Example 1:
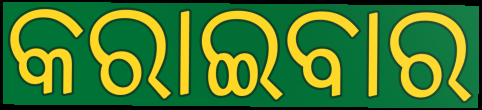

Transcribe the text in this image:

କରାଇବାର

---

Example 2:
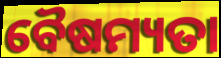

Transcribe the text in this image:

ବୈଷମ୍ୟତା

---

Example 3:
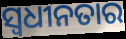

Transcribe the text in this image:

ସ୍ବଧୀନତାର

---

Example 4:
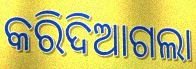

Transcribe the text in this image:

କରିଦିଆଗଲା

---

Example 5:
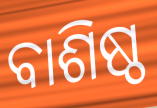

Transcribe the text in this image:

ବାଶିଷ୍ଠ